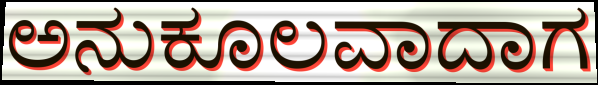
ಅನುಕೂಲವಾದಾಗ